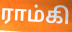
ராம்கி